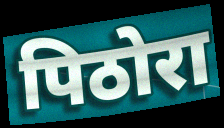
पिठोरा